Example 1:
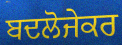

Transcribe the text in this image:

ਬਦਲੋਜੇਕਰ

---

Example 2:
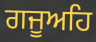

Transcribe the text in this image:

ਗਜੂਅਹਿ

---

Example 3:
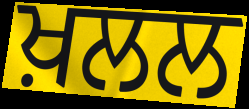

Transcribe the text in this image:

ਖ਼ਲਲ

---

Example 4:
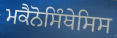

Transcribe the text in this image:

ਮਕੈਨੋਸਿੰਥੇਸਿਸ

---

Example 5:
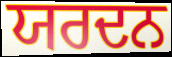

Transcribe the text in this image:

ਯਰਦਨ